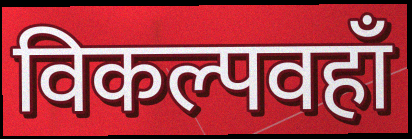
विकल्पवहाँ